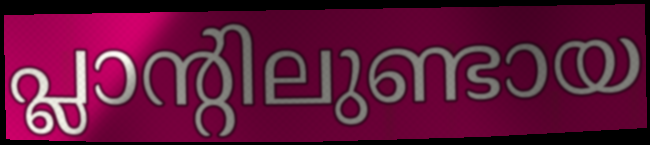
പ്ലാന്റിലുണ്ടായ